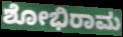
ಶೋಭಿರಾಮ